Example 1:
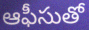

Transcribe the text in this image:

ఆఫీసుతో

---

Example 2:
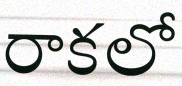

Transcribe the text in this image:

రాకలో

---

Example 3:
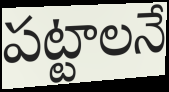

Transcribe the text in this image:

పట్టాలనే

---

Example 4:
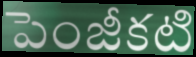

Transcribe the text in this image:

పెంజీకటి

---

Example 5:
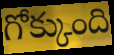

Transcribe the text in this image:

గోక్కుంది